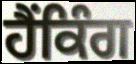
ਹੈਂਕਿੰਗ